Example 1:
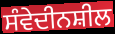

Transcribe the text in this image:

ਸੰਵੇਦੀਨਸ਼ੀਲ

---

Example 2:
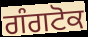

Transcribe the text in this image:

ਗੰਗਟੋਕ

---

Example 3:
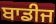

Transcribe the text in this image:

ਬਾਡੀਜ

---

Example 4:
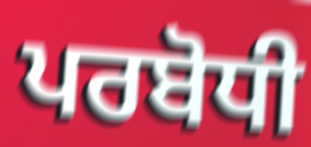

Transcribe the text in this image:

ਪਰਬੋਧੀ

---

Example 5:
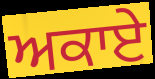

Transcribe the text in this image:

ਅਕਾਏ